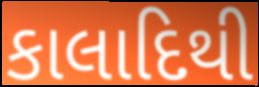
કાલાદિથી